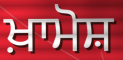
ਖ਼ਾਮੋਸ਼